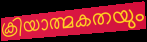
ക്രിയാത്മകതയും